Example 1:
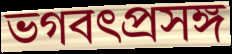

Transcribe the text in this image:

ভগবৎপ্রসঙ্গ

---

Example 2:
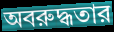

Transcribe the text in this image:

অবরুদ্ধতার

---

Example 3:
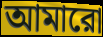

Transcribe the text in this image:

আমারো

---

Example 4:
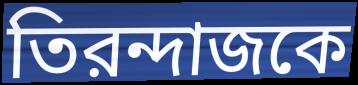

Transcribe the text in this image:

তিরন্দাজকে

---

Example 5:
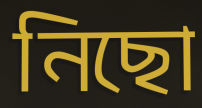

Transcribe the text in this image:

নিছো